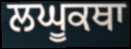
ਲਘੂਕਥਾ